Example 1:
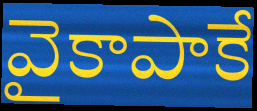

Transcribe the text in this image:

వైకాపాకే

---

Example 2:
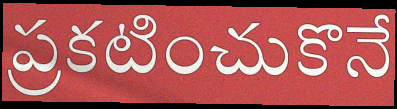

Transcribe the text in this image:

ప్రకటించుకొనే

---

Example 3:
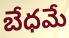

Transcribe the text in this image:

బేధమే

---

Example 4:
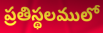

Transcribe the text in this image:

ప్రతిస్థలములో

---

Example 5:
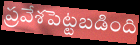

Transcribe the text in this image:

ప్రవేశపెట్టబడింది